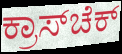
ಕ್ರಾಸ್‌ಚೆಕ್